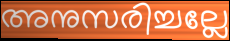
അനുസരിച്ചല്ലേ